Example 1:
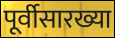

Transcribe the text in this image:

पूर्वीसारख्या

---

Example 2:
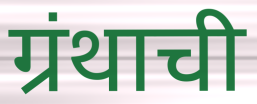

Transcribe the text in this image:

ग्रंथाची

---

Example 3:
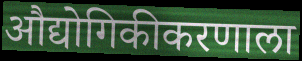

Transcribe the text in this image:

औद्योगिकीकरणाला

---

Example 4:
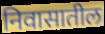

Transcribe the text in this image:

निवासातील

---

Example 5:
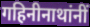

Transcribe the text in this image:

गहिनीनाथांनीं